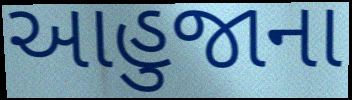
આહુજાના